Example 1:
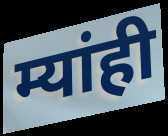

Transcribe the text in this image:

म्यांही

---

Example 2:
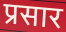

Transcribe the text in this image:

प्रसार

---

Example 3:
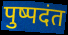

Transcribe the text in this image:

पुष्पदंत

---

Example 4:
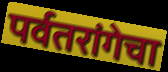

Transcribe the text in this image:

पर्वतरांगेचा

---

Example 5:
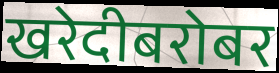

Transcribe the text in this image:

खरेदीबरोबर